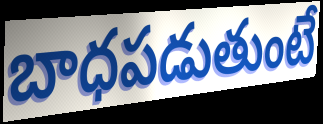
బాధపడుతుంటే